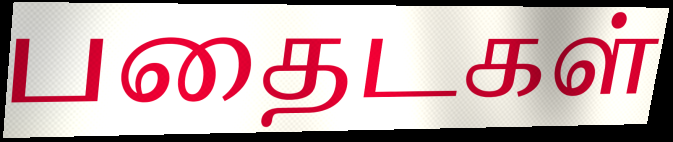
பதைடகள்